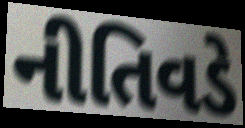
નીતિવડે